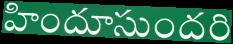
హిందూసుందరి